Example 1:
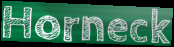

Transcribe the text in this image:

Horneck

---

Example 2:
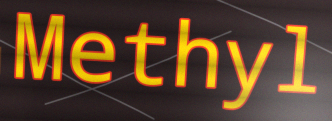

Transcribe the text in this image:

Methyl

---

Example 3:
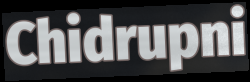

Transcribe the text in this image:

Chidrupni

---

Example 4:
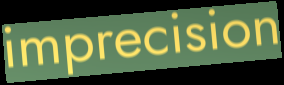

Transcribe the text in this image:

imprecision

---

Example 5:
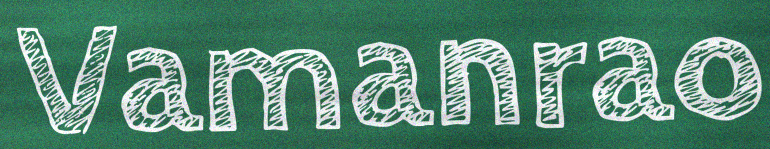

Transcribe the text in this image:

Vamanrao